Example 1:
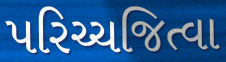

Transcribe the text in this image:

પરિચ્ચજિત્વા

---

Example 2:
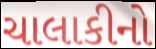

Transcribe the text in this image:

ચાલાકીનો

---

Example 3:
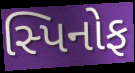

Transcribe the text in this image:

સ્પિનોફ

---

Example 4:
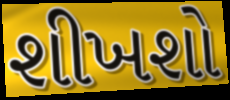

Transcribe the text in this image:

શીખશો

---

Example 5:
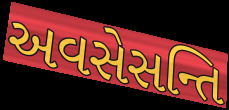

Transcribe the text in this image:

અવસેસન્તિ